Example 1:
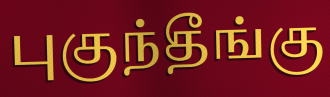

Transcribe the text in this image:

புகுந்தீங்கு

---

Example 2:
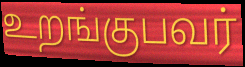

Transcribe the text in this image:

உறங்குபவர்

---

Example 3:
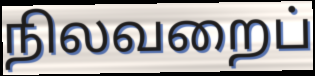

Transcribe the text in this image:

நிலவறைப்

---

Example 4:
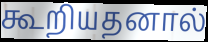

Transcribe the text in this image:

கூறியதனால்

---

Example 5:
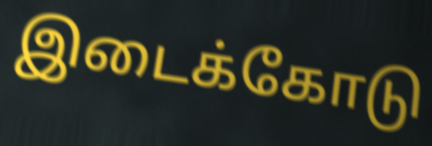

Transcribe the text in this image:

இடைக்கோடு